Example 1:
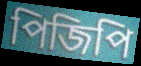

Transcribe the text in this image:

পিজিপি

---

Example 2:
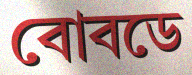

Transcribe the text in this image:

বোবডে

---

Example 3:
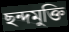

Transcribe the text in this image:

ছন্দমুক্তি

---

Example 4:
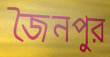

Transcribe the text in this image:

জৈনপুর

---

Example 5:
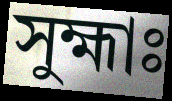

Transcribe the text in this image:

সুহ্মাঃ